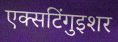
एक्सटिंगुइशर